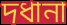
দধানা